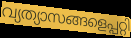
വ്യത്യാസങ്ങളെപ്പറ്റി